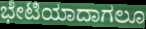
ಭೇಟಿಯಾದಾಗಲೂ